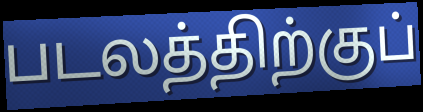
படலத்திற்குப்